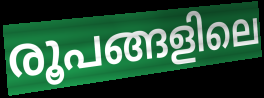
രൂപങ്ങളിലെ